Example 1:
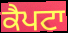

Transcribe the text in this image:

ਕੈਪਟਾ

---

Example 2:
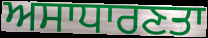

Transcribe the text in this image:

ਅਸਾਧਾਰਣਤਾ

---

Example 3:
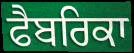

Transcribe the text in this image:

ਫੈਬਰਿਕਾ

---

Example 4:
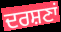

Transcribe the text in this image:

ਦਰਸ਼ਣਾਂ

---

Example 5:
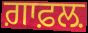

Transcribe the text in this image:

ਗ਼ਾਫ਼ਲ਼